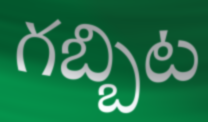
గబ్బిట